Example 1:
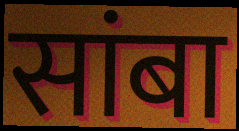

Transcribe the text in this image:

सांबा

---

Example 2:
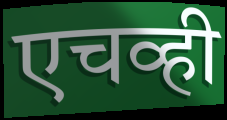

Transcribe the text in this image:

एचव्ही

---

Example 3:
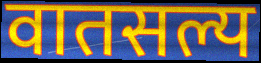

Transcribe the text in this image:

वातसल्य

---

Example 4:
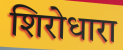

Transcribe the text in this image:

शिरोधारा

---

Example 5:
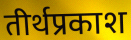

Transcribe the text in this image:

तीर्थप्रकाश